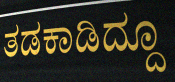
ತಡಕಾಡಿದ್ದೂ